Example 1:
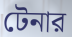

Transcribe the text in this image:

টেনার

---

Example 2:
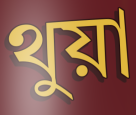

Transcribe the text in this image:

থুয়া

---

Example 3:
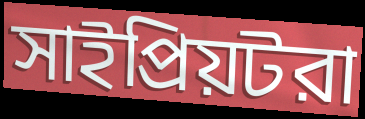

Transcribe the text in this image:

সাইপ্রিয়টরা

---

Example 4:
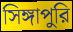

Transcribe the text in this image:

সিঙ্গাপুরি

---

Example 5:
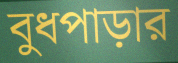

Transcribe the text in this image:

বুধপাড়ার